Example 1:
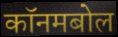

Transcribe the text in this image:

कॉनमबोल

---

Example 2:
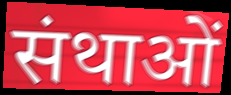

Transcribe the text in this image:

संथाओं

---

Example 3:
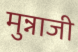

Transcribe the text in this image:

मुन्नाजी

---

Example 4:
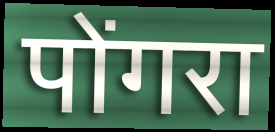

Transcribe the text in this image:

पोंगरा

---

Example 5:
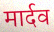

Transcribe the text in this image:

मार्दव